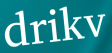
drikv